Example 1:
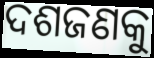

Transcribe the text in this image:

ଦଶଜଣକୁ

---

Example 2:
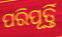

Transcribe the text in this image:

ପରିପୂର୍ତ୍ତି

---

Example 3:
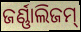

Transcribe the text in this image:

ଜର୍ଣ୍ଣାଲିଜମ୍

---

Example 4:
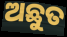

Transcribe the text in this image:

ଅଛୁତ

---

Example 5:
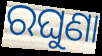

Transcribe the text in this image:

ରଘୁଣା